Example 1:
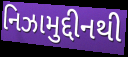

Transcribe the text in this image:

નિઝામુદ્દીનથી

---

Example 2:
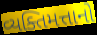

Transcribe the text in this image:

વ્યક્તિમત્તાનો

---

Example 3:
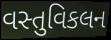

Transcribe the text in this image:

વસ્તુવિકલન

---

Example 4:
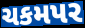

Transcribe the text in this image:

ચકમપર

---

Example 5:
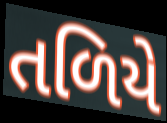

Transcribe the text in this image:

તળિયે